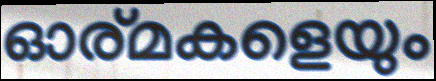
ഓര്മകളെയും